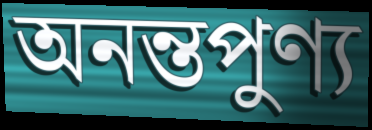
অনন্তপুণ্য